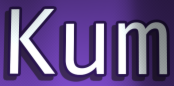
Kum